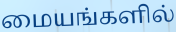
மையங்களில்